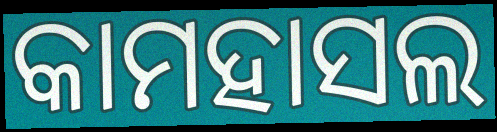
କାମହାସଲ